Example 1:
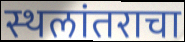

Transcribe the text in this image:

स्थलांतराचा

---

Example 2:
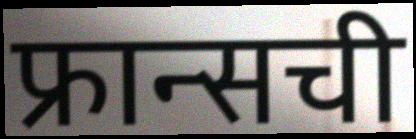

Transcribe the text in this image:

फ्रान्सची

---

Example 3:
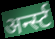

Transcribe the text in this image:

अर्न्स्ट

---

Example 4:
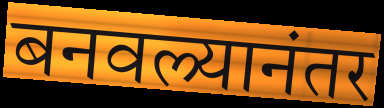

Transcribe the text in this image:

बनवल्यानंतर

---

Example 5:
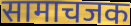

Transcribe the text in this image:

सामाचजक